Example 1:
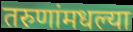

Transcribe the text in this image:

तरुणांमधल्या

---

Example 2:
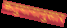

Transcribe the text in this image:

ऋतुमानानुसार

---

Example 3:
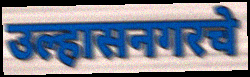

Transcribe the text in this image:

उल्हासनगरचे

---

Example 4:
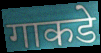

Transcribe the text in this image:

गाकडे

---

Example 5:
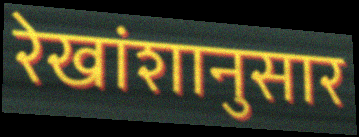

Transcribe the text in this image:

रेखांशानुसार